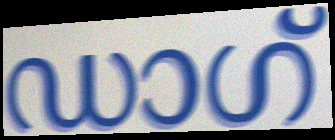
ഡാഗ്